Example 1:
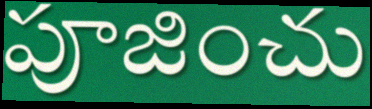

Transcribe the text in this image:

పూజించు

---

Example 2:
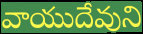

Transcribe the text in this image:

వాయుదేవుని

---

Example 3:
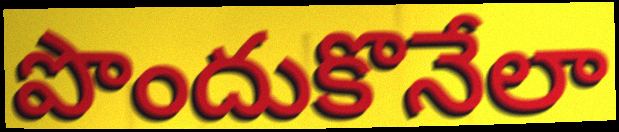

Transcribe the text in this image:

పొందుకొనేలా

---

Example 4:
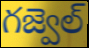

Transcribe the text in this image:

గజ్వెల్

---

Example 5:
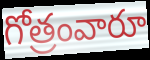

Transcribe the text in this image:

గోత్రంవారూ